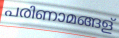
പരിണാമങ്ങള്